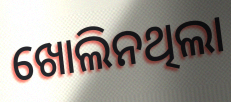
ଖୋଲିନଥିଲା